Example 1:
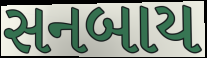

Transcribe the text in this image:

સનબાય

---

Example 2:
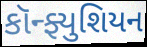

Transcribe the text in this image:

કૉન્ફ્યુશિયન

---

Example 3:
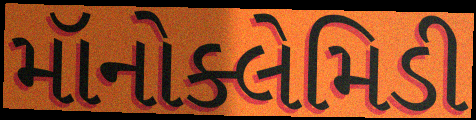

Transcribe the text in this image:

મૉનોક્લેમિડી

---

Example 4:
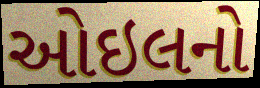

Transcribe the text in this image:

ઓઇલનો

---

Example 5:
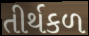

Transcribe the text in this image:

તીર્થકળ